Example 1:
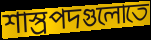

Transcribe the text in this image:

শাস্ত্রপদগুলোতে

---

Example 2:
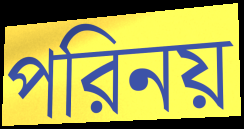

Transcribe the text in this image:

পরিনয়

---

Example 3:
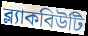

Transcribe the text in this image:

ব্ল্যাকবিউটি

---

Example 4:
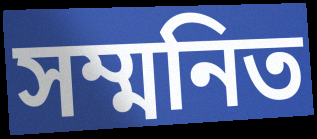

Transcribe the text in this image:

সম্মনিত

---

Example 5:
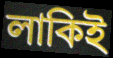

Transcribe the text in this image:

লাকিই